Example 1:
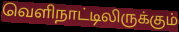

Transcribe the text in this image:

வெளிநாட்டிலிருக்கும்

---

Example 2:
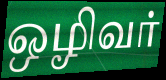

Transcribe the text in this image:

ஒழிவர்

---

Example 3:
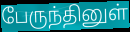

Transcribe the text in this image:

பேருந்தினுள்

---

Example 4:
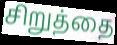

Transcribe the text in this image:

சிறுத்தை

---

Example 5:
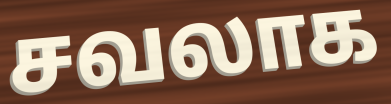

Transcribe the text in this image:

சவலாக